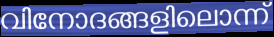
വിനോദങ്ങളിലൊന്ന്